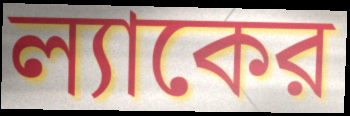
ল্যাকের